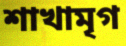
শাখামৃগ